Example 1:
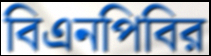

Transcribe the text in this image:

বিএনপিবির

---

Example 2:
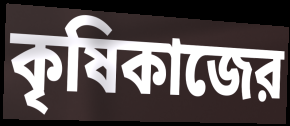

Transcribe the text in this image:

কৃষিকাজের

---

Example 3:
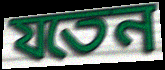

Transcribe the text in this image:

যতেন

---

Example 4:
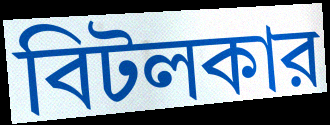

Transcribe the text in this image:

বিটলকার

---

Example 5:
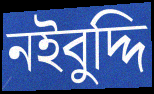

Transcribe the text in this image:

নইবুদ্দি